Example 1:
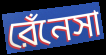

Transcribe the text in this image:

রেঁনেসা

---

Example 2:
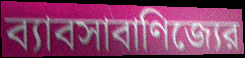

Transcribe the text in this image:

ব্যাবসাবাণিজ্যের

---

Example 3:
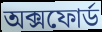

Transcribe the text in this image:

অক্সফোর্ড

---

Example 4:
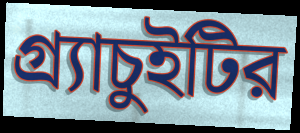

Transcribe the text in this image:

গ্র্যাচুইটির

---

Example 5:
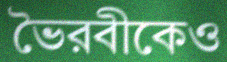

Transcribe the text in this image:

ভৈরবীকেও